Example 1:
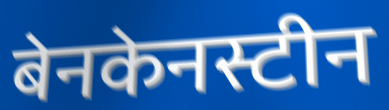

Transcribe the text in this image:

बेनकेनस्टीन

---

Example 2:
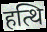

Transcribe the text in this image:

हत्थि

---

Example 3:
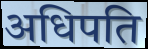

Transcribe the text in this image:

अधिपति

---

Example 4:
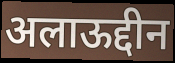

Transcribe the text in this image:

अलाऊद्दीन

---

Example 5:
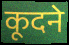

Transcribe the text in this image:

कूदने